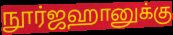
நூர்ஜஹானுக்கு